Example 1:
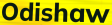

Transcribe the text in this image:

Odishaw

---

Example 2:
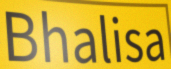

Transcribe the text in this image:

Bhalisa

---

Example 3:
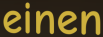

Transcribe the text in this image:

einen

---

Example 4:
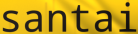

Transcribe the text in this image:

santai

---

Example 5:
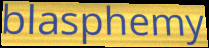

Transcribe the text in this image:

blasphemy